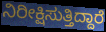
ನಿರೀಕ್ಷಿಸುತ್ತಿದ್ದಾರೆ